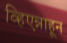
व्हिएन्नाहून